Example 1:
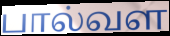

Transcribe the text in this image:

பால்வள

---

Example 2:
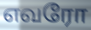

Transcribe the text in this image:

எவரோ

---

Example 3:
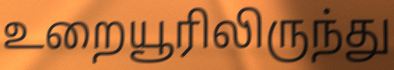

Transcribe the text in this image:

உறையூரிலிருந்து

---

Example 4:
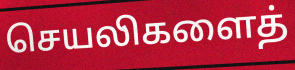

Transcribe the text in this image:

செயலிகளைத்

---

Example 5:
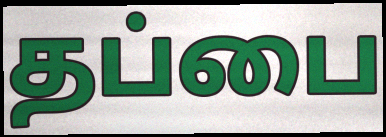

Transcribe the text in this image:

தப்பை